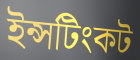
ইন্সটিংকট